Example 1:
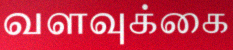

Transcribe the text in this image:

வளவுக்கை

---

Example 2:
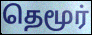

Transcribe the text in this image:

தெமூர்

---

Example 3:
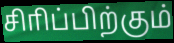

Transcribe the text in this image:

சிரிப்பிற்கும்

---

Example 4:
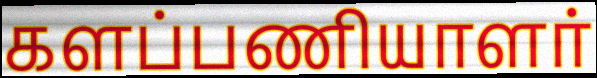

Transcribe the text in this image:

களப்பணியாளர்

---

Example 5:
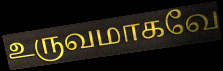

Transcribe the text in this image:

உருவமாகவே